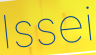
Issei